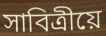
সাবিত্ৰীয়ে